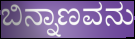
ಬಿನ್ನಾಣವನು